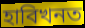
হাবিখনত